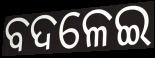
ବଦଳେଇ